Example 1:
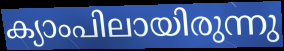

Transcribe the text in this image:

ക്യാംപിലായിരുന്നു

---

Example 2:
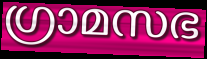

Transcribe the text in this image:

ഗ്രാമസഭ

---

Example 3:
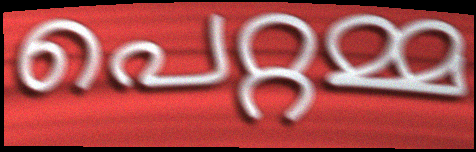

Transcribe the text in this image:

പെറ്റമ്മ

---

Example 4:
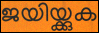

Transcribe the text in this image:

ജയിയ്ക്കുക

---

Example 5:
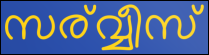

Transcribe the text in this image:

സര്വ്വീസ്